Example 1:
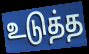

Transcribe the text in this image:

உடுத்த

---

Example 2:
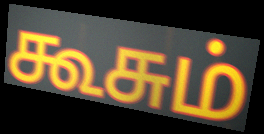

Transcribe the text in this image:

கூசும்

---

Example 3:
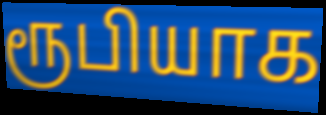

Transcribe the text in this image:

ரூபியாக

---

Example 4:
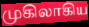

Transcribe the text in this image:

முகிலாகிய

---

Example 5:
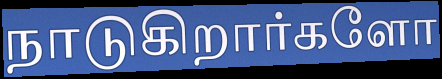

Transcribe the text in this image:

நாடுகிறார்களோ